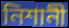
নিশানী